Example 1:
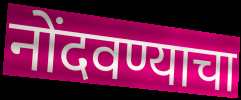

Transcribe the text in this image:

नोंदवण्याचा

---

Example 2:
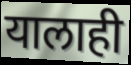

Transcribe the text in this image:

यालाही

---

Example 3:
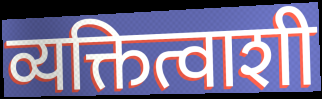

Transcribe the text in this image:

व्यक्तित्वाशी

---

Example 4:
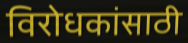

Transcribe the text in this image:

विरोधकांसाठी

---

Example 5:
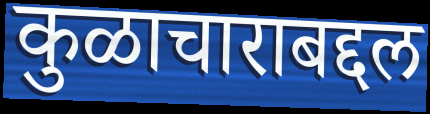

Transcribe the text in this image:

कुळाचाराबद्दल